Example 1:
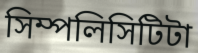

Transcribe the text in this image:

সিম্পলিসিটিটা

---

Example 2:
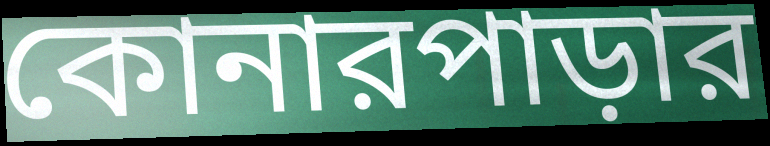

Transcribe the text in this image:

কোনারপাড়ার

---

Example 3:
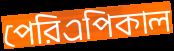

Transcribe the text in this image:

পেরিএপিকাল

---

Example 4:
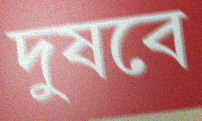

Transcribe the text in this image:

দুষবে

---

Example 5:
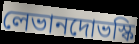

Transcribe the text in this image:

লেভানদোভস্কি